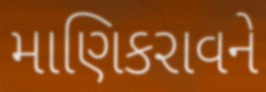
માણિકરાવને